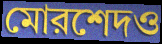
মোরশেদও